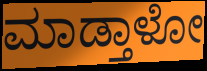
ಮಾಡ್ತಾಳೋ